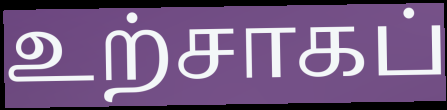
உற்சாகப்